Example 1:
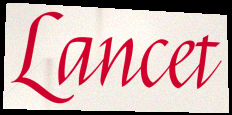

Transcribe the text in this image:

Lancet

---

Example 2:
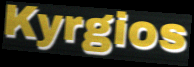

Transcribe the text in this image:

Kyrgios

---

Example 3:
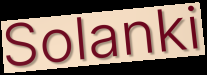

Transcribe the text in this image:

Solanki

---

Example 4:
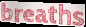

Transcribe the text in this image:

breaths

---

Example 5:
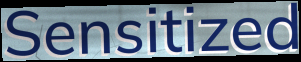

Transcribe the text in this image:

Sensitized